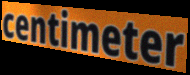
centimeter